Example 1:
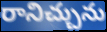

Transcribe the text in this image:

రానిచ్చును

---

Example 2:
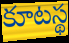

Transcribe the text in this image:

కూటస్థ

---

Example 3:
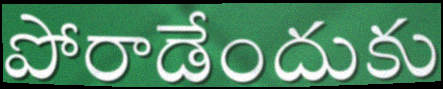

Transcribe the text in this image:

పోరాడేందుకు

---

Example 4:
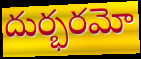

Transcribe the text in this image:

దుర్భరమో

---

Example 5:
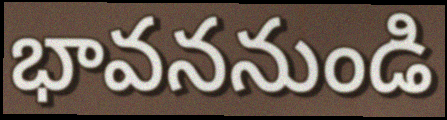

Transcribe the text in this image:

భావననుండి